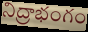
నిద్రాభంగం